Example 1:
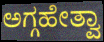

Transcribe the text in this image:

ಅಗ್ಗಹೇತ್ವಾ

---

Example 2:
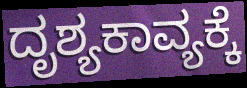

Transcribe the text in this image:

ದೃಶ್ಯಕಾವ್ಯಕ್ಕೆ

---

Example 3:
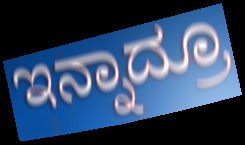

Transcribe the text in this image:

ಇನ್ನಾದ್ರೂ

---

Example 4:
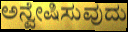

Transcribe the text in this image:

ಅನ್ವೇಷಿಸುವುದು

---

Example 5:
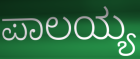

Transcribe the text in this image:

ಪಾಲಯ್ಯ